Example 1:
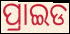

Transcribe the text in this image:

ପ୍ରାଇଡ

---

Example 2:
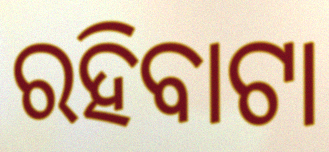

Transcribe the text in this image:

ରହିବାଟା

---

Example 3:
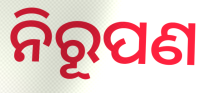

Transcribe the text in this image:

ନିରୂପଣ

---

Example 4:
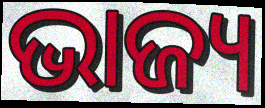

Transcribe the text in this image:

ଭାଜ୍ୟ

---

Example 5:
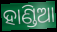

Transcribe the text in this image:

ହାଣ୍ଡିଆ